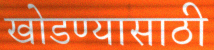
खोडण्यासाठी